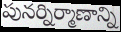
పునర్నిర్మాణాన్ని